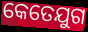
କେତେଯୁଗ